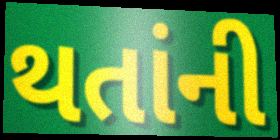
થતાંની